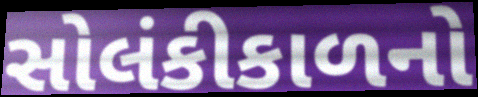
સોલંકીકાળનો